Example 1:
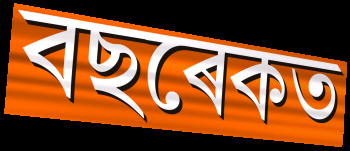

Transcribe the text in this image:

বছৰেকত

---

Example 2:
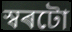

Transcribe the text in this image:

স্বৰটো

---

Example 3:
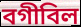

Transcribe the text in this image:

বগীবিল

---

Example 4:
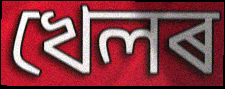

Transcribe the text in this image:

খেলৰ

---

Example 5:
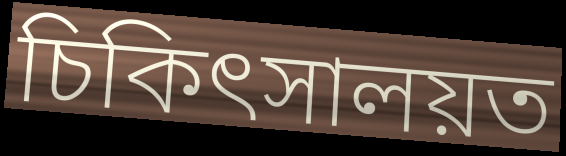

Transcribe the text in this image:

চিকিৎসালয়ত